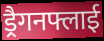
ड्रैगनफ्लाई